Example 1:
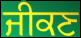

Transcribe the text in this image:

ਜੀਕਣ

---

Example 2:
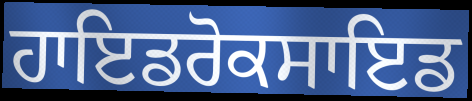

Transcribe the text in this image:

ਹਾਇਡਰੋਕਸਾਇਡ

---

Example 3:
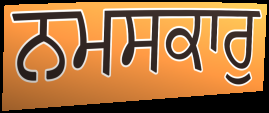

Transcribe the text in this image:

ਨਮਸਕਾਰੁ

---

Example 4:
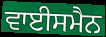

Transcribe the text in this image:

ਵਾਈਸਮੈਨ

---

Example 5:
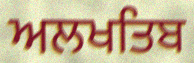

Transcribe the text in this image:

ਅਲਖਤਿਬ